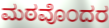
ಮಠವೊಂದರ